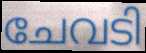
ചേവടി